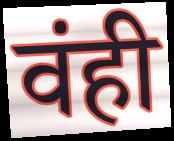
वंही